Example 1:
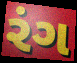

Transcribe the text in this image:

રંગ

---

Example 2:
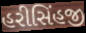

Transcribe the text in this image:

હરીસિંહજી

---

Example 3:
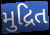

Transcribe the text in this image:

મુદ્રિત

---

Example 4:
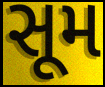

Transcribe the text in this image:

સૂમ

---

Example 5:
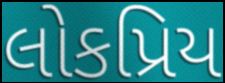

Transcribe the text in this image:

લોકપ્રિય